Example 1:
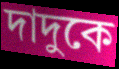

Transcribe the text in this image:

দাদুকে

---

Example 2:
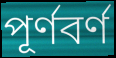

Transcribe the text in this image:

পূর্ণবর্ণ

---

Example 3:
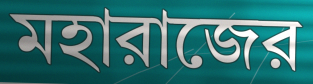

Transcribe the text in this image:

মহারাজের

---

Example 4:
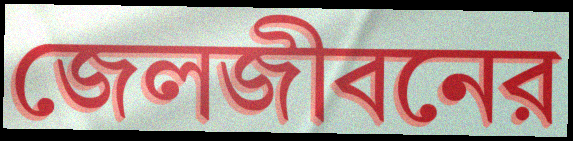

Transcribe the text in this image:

জেলজীবনের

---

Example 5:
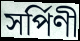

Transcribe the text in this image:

সর্পিণী